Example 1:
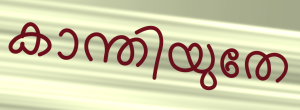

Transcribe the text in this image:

കാന്തിയുതേ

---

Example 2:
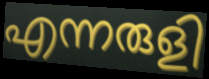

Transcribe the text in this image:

എന്നരുളി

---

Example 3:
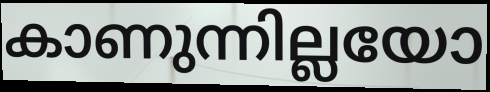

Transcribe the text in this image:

കാണുന്നില്ലയോ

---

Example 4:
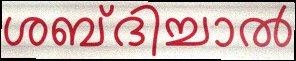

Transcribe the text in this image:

ശബ്ദിച്ചാൽ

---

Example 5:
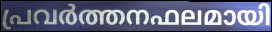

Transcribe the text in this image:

പ്രവർത്തനഫലമായി